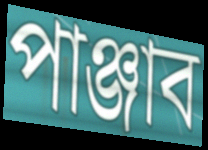
পাঞ্জাব